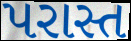
પરાસ્ત